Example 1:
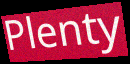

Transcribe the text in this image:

Plenty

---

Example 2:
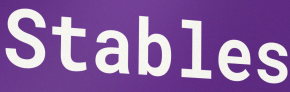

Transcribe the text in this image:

Stables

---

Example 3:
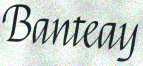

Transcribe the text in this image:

Banteay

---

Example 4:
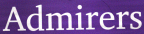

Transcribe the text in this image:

Admirers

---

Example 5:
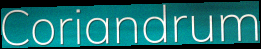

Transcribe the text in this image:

Coriandrum